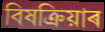
বিষক্ৰিয়াৰ